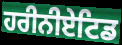
ਹਰੀਨੀਏਟਿਡ